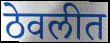
ठेवलीत